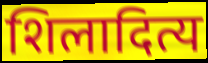
शिलादित्य